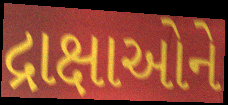
દ્રાક્ષાઓને